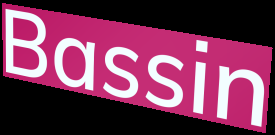
Bassin